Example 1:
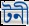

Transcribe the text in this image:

টনী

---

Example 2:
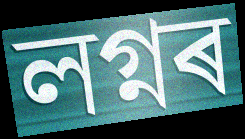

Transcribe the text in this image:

লগ্নৰ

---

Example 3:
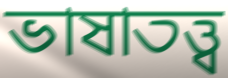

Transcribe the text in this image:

ভাষাতত্ত্ব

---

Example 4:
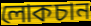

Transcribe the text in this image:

লোকচান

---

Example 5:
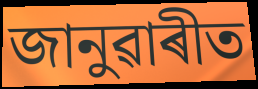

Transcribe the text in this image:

জানুৱাৰীত